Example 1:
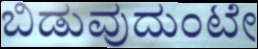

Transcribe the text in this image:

ಬಿಡುವುದುಂಟೇ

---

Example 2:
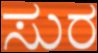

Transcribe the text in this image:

ಸುರ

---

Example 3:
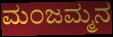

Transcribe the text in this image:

ಮಂಜಮ್ಮನ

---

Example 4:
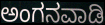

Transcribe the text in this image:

ಅಂಗನವಾಡಿ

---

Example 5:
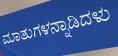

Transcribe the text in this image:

ಮಾತುಗಳನ್ನಾಡಿದಳು